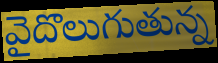
వైదొలుగుతున్న